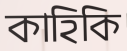
কাহিকি